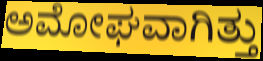
ಅಮೋಘವಾಗಿತ್ತು